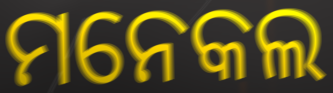
ମନେକଲ